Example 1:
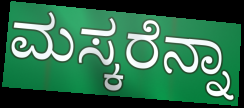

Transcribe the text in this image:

ಮಸ್ಕರೆನ್ನಾ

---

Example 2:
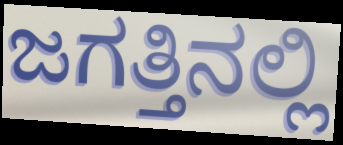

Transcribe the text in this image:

ಜಗತ್ತಿನಲ್ಲಿ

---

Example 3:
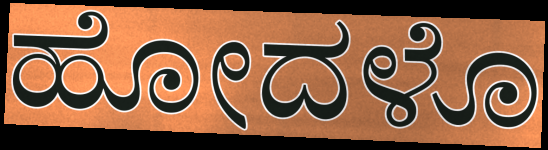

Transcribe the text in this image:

ಹೋದಳೊ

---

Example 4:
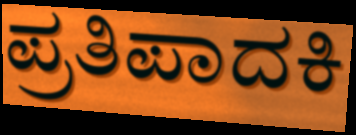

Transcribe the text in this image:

ಪ್ರತಿಪಾದಕಿ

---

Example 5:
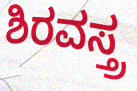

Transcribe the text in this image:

ಶಿರವಸ್ತ್ರ